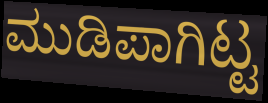
ಮುಡಿಪಾಗಿಟ್ಟ